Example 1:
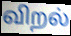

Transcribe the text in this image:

விறல்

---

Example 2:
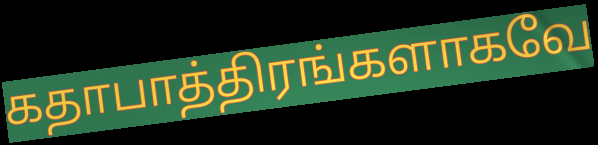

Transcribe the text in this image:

கதாபாத்திரங்களாகவே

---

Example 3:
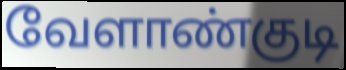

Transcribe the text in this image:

வேளாண்குடி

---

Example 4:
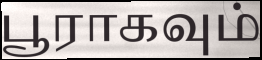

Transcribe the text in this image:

பூராகவும்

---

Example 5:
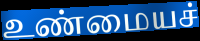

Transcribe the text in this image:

உண்மையச்